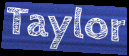
Taylor